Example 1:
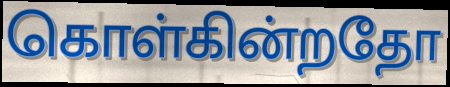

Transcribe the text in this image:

கொள்கின்றதோ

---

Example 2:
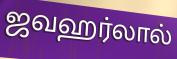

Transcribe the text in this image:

ஜவஹர்லால்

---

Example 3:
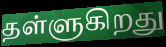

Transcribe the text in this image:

தள்ளுகிறது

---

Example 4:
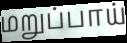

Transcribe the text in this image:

மறுப்பாய்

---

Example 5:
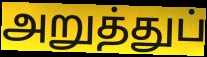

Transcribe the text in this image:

அறுத்துப்